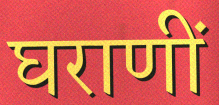
घराणीं